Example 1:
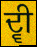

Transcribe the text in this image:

ਦ੍ਵੀ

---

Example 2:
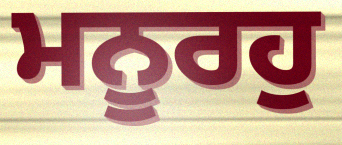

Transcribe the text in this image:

ਮਨੂਰਹੁ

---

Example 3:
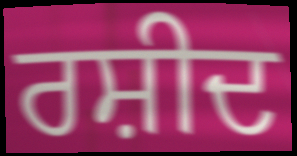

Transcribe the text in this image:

ਰਸ਼ੀਦ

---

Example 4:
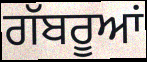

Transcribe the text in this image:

ਗੱਬਰੂਆਂ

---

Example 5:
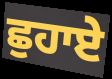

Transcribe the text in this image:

ਛੁਹਾਏ